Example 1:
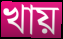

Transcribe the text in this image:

খায়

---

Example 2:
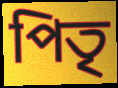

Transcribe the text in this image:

পিতৃ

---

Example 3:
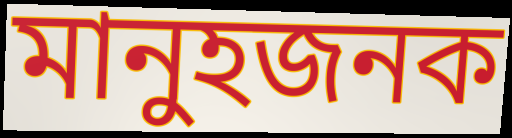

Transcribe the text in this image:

মানুহজনক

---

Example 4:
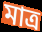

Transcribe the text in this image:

মাত্ৰ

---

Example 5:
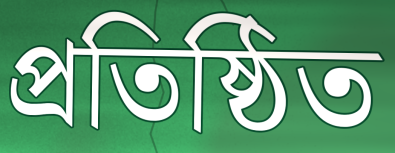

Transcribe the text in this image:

প্ৰতিষ্ঠিত